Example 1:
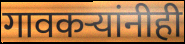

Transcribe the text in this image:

गावकऱ्यांनीही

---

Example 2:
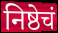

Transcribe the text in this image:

निष्ठेचं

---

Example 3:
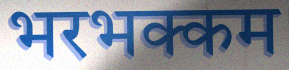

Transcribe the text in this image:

भरभक्कम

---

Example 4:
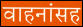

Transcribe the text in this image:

वाहनांसह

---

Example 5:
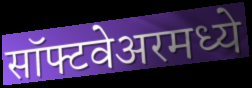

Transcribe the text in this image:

सॉफ्टवेअरमध्ये